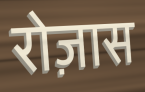
रोज़ास